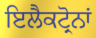
ਇਲੈਕਟ੍ਰੋਨਾਂ